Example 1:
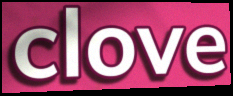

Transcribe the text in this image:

clove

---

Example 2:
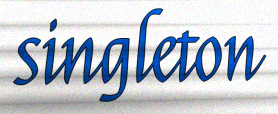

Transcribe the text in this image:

singleton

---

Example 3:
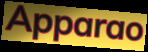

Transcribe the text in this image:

Apparao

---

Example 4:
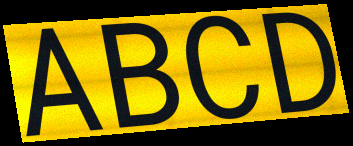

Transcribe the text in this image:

ABCD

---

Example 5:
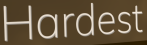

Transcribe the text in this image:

Hardest